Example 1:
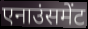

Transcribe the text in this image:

एनाउंसमेंट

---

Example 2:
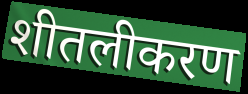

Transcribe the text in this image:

शीतलीकरण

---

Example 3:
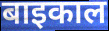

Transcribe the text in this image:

बाइकाल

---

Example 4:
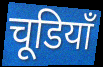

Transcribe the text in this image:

चूडियाँ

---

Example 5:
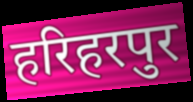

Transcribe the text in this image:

हरिहरपुर